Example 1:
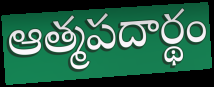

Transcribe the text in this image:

ఆత్మపదార్థం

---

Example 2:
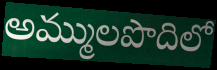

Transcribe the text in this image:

అమ్ములపొదిలో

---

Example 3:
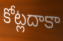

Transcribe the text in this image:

కోట్లదాకా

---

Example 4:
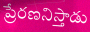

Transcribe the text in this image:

ప్రేరణనిస్తాడు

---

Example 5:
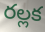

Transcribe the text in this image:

రల్లక